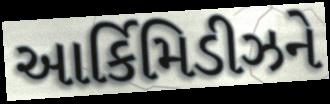
આર્કિમિડીઝને